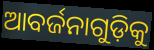
ଆବର୍ଜନାଗୁଡ଼ିକୁ